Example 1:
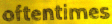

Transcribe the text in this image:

oftentimes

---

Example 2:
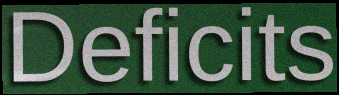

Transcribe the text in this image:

Deficits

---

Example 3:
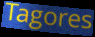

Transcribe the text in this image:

Tagores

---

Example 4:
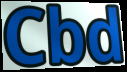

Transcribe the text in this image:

Cbd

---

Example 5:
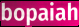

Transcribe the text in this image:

bopaiah